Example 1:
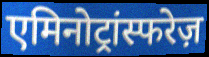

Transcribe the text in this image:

एमिनोट्रांस्फरेज़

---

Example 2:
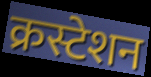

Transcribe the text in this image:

क्रस्टेशन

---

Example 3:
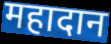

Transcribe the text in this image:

महादान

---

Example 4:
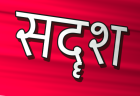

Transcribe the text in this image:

सदॄश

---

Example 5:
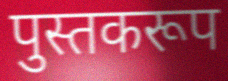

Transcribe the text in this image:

पुस्तकरूप